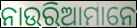
ନାଉରିଆମାନେ